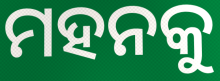
ମହନକୁ